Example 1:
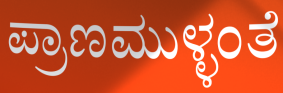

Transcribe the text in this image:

ಪ್ರಾಣಮುಳ್ಳಂತೆ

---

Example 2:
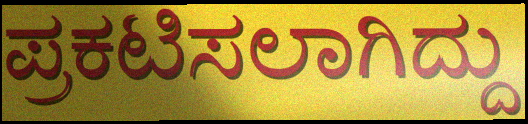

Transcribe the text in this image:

ಪ್ರಕಟಿಸಲಾಗಿದ್ದು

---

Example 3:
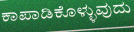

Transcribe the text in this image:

ಕಾಪಾಡಿಕೊಳ್ಳುವುದು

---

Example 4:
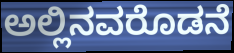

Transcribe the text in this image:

ಅಲ್ಲಿನವರೊಡನೆ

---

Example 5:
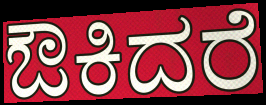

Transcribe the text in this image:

ಔಕಿದರೆ